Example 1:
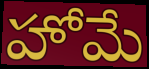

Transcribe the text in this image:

హోమే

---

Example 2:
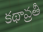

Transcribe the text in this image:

కథావ్రతీ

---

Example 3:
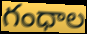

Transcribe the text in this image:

గంధాల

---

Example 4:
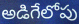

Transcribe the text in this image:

అడిగేలోపు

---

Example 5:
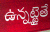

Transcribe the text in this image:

ఉన్నట్టైతే